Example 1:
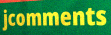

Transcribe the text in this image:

jcomments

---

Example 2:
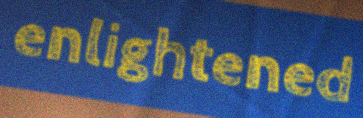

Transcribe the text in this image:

enlightened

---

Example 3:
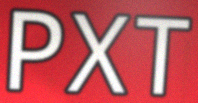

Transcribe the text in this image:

PXT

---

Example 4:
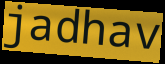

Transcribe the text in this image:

jadhav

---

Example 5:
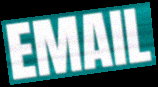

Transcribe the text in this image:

EMAIL